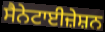
ਸੈਨੇਟਾਈਜ਼ੇਸ਼ਨ